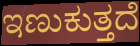
ಇಣುಕುತ್ತದೆ